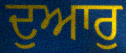
ਦੁਆਰੁ